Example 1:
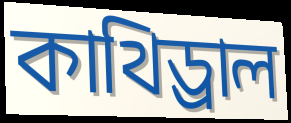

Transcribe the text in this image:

কাথিড্রাল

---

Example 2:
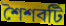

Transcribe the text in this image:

শৈশবটি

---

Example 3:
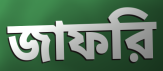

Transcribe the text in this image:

জাফরি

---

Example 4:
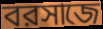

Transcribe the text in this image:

বরসাজে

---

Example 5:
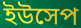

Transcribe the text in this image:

ইউসেপ